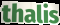
thalis